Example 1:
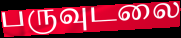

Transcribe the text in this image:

பருவுடலை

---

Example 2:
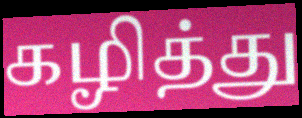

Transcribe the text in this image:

கழித்து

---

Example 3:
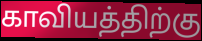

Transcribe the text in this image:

காவியத்திற்கு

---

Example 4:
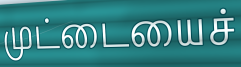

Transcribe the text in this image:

முட்டையைச்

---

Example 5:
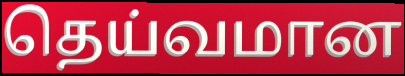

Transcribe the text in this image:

தெய்வமான